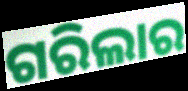
ଗରିଲାର